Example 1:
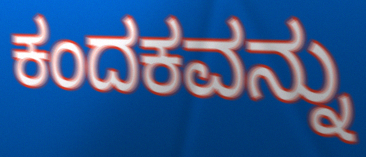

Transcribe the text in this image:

ಕಂದಕವನ್ನು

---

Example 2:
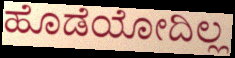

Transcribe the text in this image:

ಹೊಡೆಯೋದಿಲ್ಲ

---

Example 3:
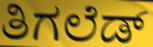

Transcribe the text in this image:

ತಿಗಲೆಡ್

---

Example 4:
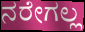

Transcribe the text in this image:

ನರೇಗಲ್ಲ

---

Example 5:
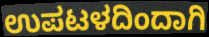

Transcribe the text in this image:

ಉಪಟಳದಿಂದಾಗಿ